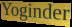
Yoginder